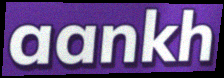
aankh